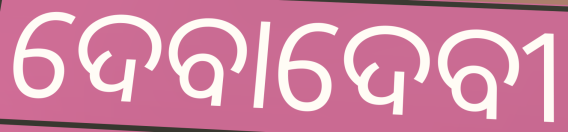
ଦେବାଦେବୀ